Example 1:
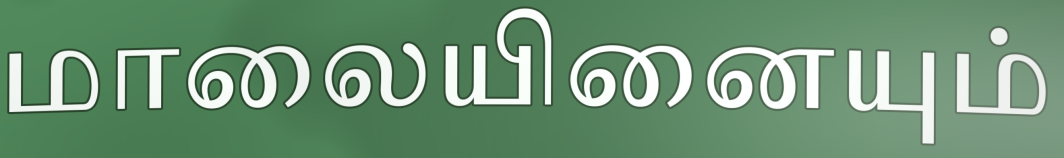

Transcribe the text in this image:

மாலையினையும்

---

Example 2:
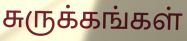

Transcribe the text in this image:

சுருக்கங்கள்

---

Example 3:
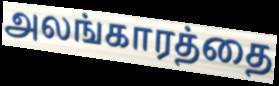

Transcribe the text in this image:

அலங்காரத்தை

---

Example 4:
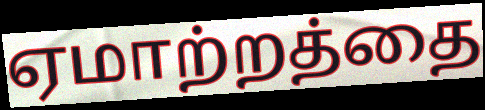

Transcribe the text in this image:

ஏமாற்றத்தை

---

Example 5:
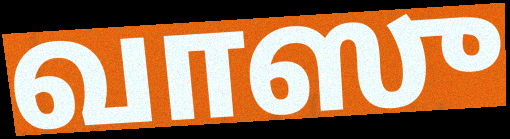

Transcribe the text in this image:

வாஸு